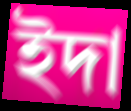
ইদা